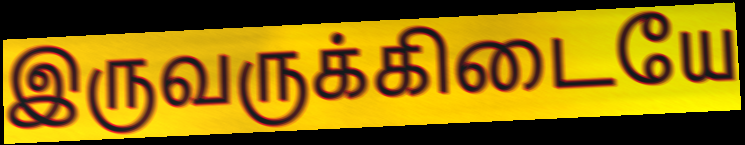
இருவருக்கிடையே